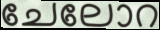
ചേലോറ